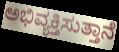
ಅಭಿವ್ಯಕ್ತಿಸುತ್ತಾನೆ